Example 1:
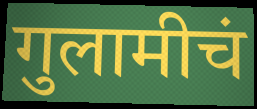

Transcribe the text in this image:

गुलामीचं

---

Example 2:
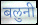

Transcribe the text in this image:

बलुनी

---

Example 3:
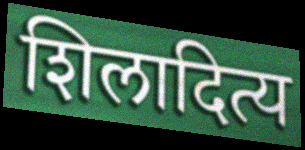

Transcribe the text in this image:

शिलादित्य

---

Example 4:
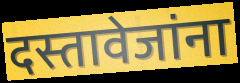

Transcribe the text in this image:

दस्तावेजांना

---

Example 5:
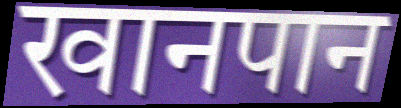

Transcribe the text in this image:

खानपान